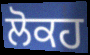
ਲੋਕਹ